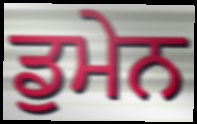
ਡੁਮੇਨ